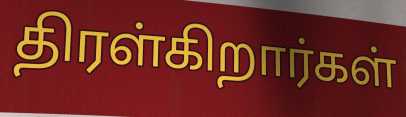
திரள்கிறார்கள்